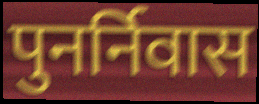
पुनर्निवास